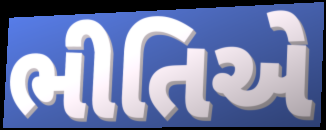
ભીતિએ